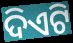
ଦିଏଟି